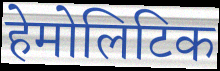
हेमोलिटिक